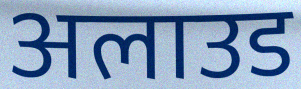
अलाउड